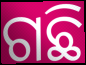
ଗଛି